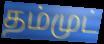
தம்முட்